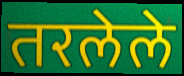
तरलेले